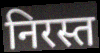
निरस्त